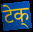
टेक्